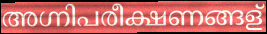
അഗ്നിപരീക്ഷണങ്ങള്